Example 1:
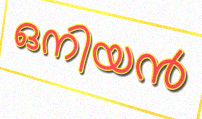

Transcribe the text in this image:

ഒനിയൻ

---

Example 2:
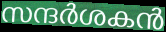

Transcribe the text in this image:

സന്ദർശകൻ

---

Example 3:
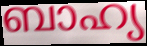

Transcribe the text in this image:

ബാഹ്യ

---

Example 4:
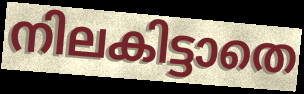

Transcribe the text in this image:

നിലകിട്ടാതെ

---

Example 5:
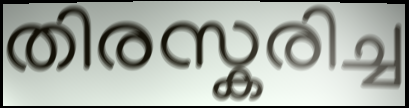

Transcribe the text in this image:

തിരസ്കരിച്ച